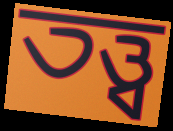
তত্ত্ব